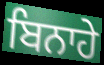
ਬਿਨਾਹੇ